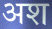
अश